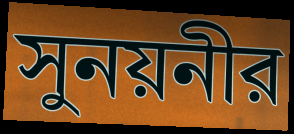
সুনয়নীর